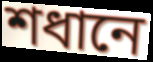
শধানে